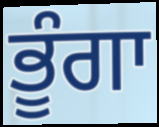
ਭੂੰਗਾ